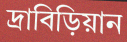
দ্রাবিড়িয়ান